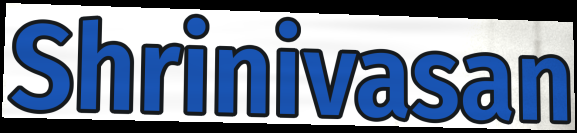
Shrinivasan